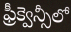
ఫ్రీక్వెన్సీలో